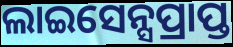
ଲାଇସେନ୍ସପ୍ରାପ୍ତ